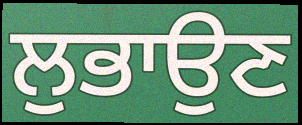
ਲੁਭਾਉਣ